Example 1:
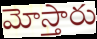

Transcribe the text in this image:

మోస్తారు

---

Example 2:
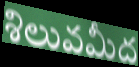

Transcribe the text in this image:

శిలువమీద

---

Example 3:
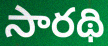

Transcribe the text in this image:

సారథి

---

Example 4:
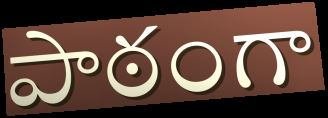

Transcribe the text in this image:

పాఠంగా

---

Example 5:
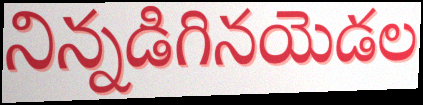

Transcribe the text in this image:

నిన్నడిగినయెడల